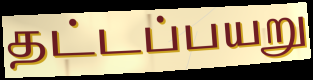
தட்டப்பயறு